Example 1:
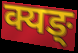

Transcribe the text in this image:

क्यङ्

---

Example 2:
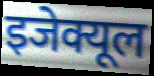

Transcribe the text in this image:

इजेक्यूल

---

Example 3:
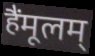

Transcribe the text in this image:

हैंमूलम्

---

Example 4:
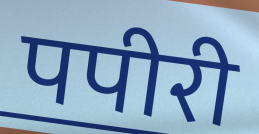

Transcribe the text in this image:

पपीरी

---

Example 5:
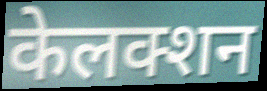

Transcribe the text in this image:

केलक्शन